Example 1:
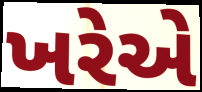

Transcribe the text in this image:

ખરેએ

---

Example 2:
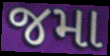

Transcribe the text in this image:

જમા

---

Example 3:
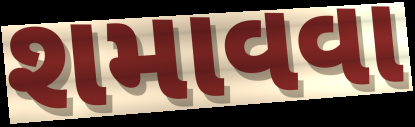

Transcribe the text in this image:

શમાવવા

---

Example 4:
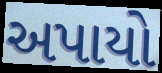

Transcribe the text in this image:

અપાયો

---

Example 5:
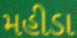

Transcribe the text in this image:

મહીડા